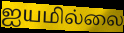
ஐயமில்லை